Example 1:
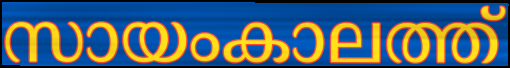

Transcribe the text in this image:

സായംകാലത്ത്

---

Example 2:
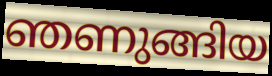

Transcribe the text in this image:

ഞണുങ്ങിയ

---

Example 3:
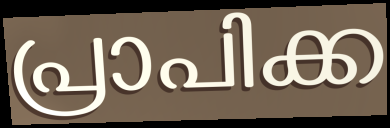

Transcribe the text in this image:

പ്രാപിക്ക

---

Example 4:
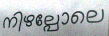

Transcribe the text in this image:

നിഴല്പോലെ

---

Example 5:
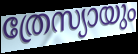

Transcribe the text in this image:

ത്രേസ്യായും